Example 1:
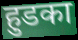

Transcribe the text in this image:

हुडका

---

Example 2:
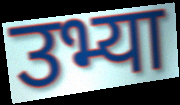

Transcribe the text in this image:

उभ्या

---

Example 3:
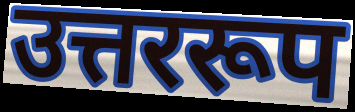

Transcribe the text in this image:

उत्तररूप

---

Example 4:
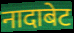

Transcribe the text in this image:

नादाबेट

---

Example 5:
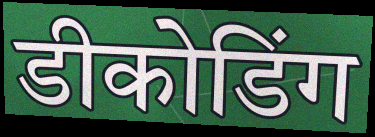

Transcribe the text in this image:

डीकोडिंग